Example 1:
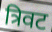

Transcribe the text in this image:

त्रिवट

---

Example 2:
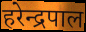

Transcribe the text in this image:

हरेन्द्रपाल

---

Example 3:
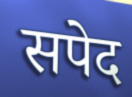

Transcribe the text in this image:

सपेद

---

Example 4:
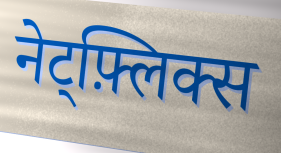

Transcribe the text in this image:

नेट्फ़्लिक्स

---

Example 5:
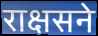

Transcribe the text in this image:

राक्षसने